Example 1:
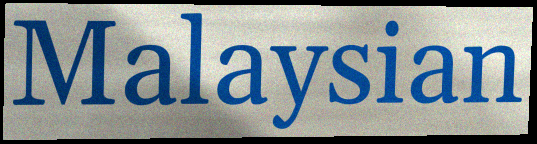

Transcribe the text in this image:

Malaysian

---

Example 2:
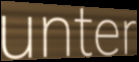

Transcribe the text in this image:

unter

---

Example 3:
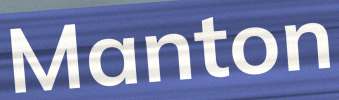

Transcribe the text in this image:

Manton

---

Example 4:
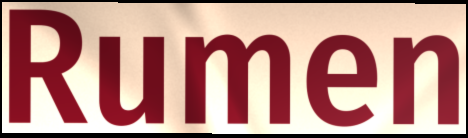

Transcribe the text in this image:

Rumen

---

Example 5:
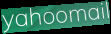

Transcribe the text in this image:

yahoomail